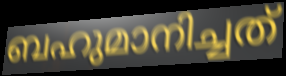
ബഹുമാനിച്ചത്